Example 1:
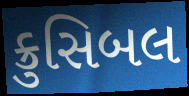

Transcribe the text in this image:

ક્રુસિબલ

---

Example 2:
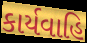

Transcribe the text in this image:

કાર્યવાહિ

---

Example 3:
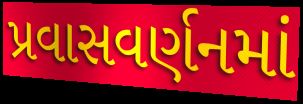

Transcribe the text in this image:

પ્રવાસવર્ણનમાં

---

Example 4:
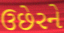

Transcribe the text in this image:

ઉછેરને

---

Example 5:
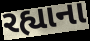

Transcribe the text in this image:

રહ્યાના